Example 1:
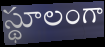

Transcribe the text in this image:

స్థూలంగా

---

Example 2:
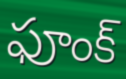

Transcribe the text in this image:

ఫూంక్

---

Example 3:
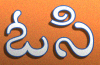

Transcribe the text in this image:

ఓసి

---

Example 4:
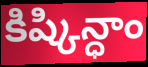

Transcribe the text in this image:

కిష్కిన్ధాం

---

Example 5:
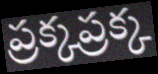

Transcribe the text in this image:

ప్రక్కప్రక్క